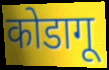
कोडागू